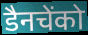
डैनचेंको